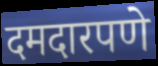
दमदारपणे